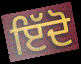
ਇੱਦੋ